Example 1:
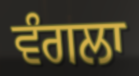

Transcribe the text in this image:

ਵੰਗਲਾ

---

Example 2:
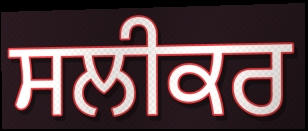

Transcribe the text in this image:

ਸਲੀਕਰ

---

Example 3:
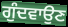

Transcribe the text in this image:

ਗੁੰਦਵਾਉਣ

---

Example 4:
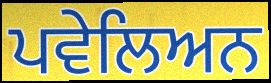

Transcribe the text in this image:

ਪਵੇਲਿਅਨ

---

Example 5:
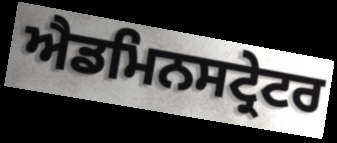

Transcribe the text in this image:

ਐਡਮਿਨਸਟ੍ਰੇਟਰ